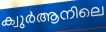
ക്വുർആനിലെ